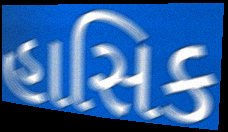
હાસિક